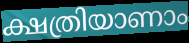
ക്ഷത്രിയാണാം